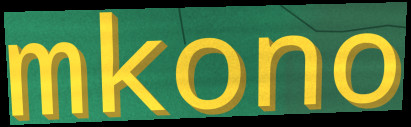
mkono